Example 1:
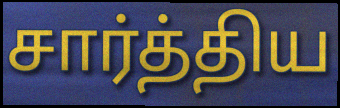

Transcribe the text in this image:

சார்த்திய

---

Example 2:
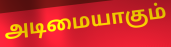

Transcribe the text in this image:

அடிமையாகும்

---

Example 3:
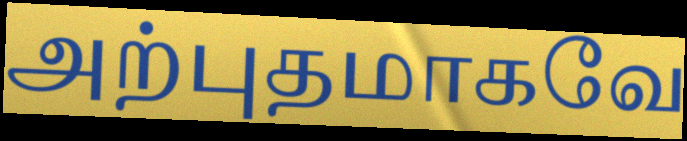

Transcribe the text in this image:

அற்புதமாகவே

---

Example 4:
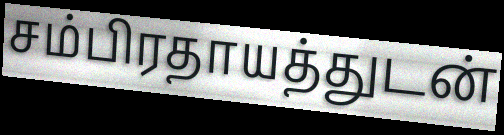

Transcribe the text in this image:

சம்பிரதாயத்துடன்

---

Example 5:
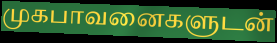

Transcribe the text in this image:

முகபாவனைகளுடன்